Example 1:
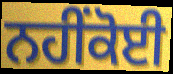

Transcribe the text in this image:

ਨਹੀਂਕੋਈ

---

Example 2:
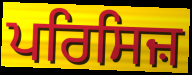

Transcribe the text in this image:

ਪਰਿਸਿਜ਼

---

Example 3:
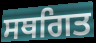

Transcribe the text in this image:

ਸਥਗਿਤ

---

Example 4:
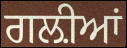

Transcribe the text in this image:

ਗਲ਼ੀਆਂ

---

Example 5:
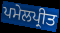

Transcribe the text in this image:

ਪਮੇਲਪ੍ਰੀਤ